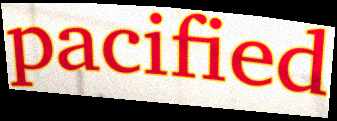
pacified